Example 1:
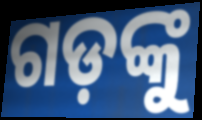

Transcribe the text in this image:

ଗଡ଼ଙ୍କୁ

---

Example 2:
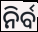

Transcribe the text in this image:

ନିର୍ବ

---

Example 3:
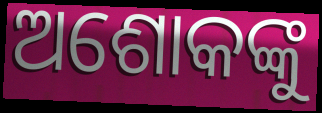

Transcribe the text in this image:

ଅଶୋକଙ୍କୁ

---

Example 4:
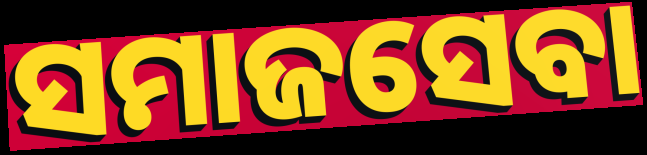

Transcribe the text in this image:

ସମାଜସେବା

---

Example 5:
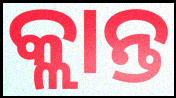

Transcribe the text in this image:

କ୍ଲାନ୍ତ